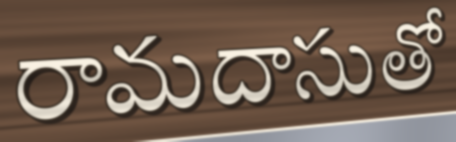
రామదాసుతో